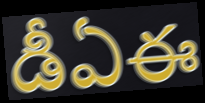
డీఏఈ